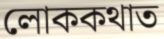
লোককথাত